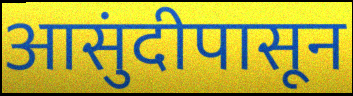
आसुंदीपासून